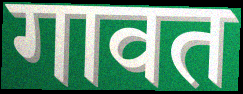
गावत